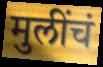
मुलींचं